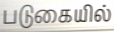
படுகையில்